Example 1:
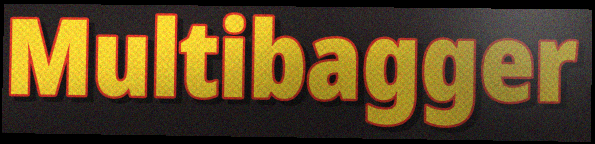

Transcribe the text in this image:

Multibagger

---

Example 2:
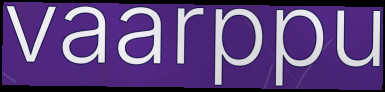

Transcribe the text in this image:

vaarppu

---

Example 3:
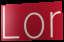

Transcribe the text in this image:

Lor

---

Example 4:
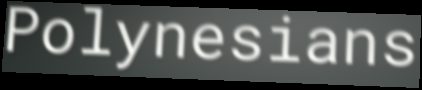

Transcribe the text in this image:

Polynesians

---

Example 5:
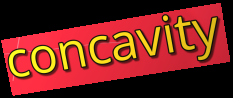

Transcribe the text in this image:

concavity